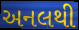
અનલથી